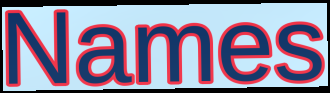
Names